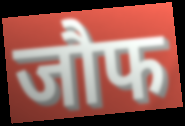
जौफ